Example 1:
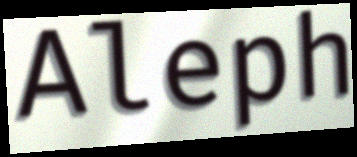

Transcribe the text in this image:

Aleph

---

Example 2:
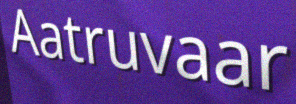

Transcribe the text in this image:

Aatruvaar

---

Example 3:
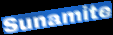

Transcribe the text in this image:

Sunamite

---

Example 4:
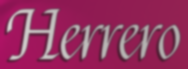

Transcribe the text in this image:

Herrero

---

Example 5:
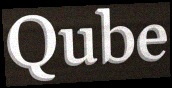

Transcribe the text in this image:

Qube